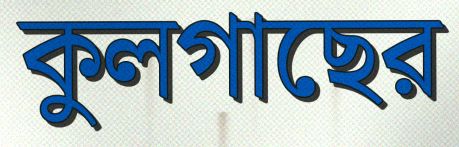
কুলগাছের